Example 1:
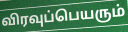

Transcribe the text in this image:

விரவுப்பெயரும்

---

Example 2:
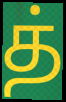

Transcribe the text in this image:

த்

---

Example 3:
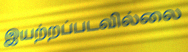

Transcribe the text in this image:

இயற்றப்படவில்லை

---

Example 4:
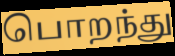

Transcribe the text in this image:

பொறந்து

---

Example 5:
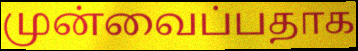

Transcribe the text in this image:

முன்வைப்பதாக